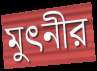
মুৎনীর